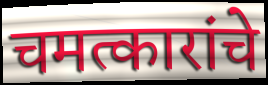
चमत्कारांचे